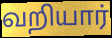
வறியார்